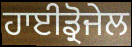
ਹਾਈਡ੍ਰੋਜੇਲ